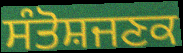
ਸੰਤੋਸ਼ਜਣਕ